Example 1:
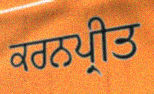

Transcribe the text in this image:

ਕਰਨਪ੍ਰੀਤ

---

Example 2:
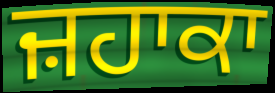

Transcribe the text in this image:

ਜ਼ਹਾਕਾ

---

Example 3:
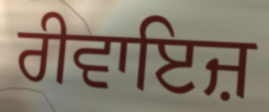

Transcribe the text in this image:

ਰੀਵਾਇਜ਼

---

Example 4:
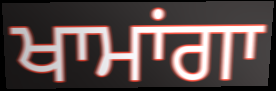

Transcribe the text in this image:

ਖਾਮਾਂਗਾ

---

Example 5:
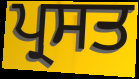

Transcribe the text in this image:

ਪ੍ਰਸਤ